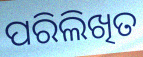
ପରିଲିଖିତ